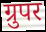
ग्रुपर